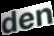
den